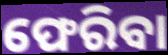
ଫେରିବା